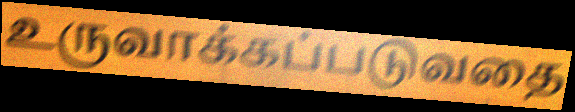
உருவாக்கப்படுவதை